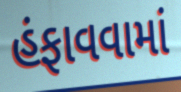
હંફાવવામાં